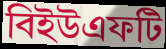
বিইউএফটি